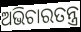
ଅଭିଚାରତନ୍ତ୍ର